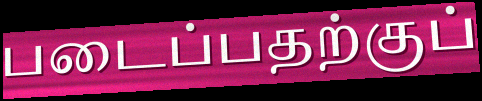
படைப்பதற்குப்